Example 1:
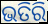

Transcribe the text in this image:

ଭତିରି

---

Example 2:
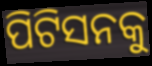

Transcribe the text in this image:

ପିଟିସନକୁ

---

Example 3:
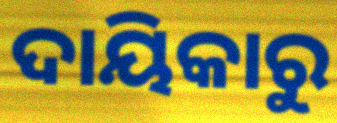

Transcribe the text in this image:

ଦାୟିକାରୁ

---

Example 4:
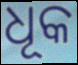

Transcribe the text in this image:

ଧୂକ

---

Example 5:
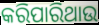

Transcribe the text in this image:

କରିପାରିଥାଉ